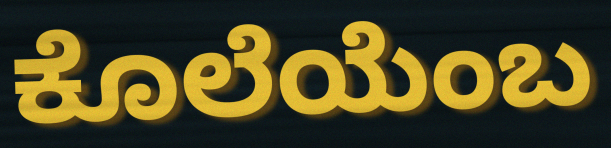
ಕೊಲೆಯೆಂಬ